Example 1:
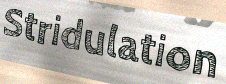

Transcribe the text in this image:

Stridulation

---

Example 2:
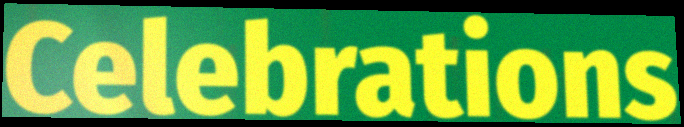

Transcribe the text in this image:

Celebrations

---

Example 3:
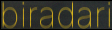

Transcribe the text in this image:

biradari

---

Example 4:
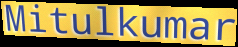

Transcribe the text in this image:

Mitulkumar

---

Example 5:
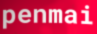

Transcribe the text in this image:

penmai